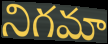
నిగమా